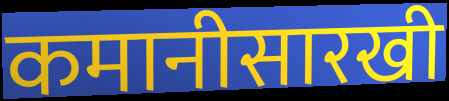
कमानीसारखी